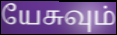
யேசுவும்